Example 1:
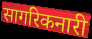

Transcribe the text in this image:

सागरिकनारी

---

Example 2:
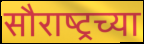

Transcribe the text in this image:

सौराष्ट्रच्या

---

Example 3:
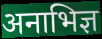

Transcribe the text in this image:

अनाभिज्ञ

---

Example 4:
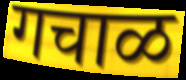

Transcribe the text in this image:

गचाळ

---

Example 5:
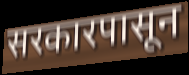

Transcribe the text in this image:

सरकारपासून